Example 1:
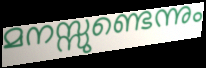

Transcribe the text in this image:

മനസ്സുണ്ടെന്നും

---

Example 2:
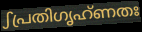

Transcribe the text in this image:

ഽപ്രതിഗൃഹ്ണതഃ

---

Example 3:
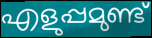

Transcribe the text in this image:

എളുപ്പമുണ്ട്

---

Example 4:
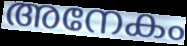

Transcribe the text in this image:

അനേകം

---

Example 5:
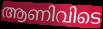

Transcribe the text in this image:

ആണിവിടെ